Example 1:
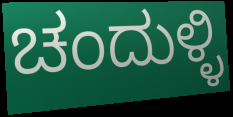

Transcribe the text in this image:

ಚಂದುಳ್ಳಿ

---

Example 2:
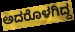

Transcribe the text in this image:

ಅದರೊಳಗಿದ್ದ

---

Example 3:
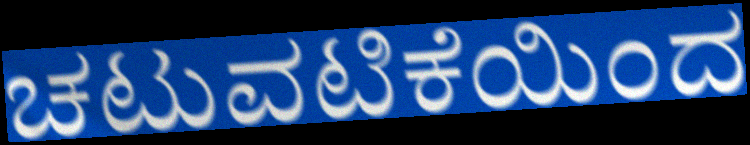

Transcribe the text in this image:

ಚಟುವಟಿಕೆಯಿಂದ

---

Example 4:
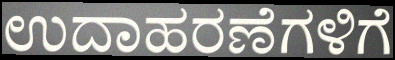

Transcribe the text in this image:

ಉದಾಹರಣೆಗಳಿಗೆ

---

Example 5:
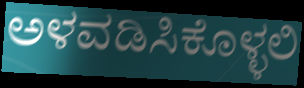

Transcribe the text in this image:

ಅಳವಡಿಸಿಕೊಳ್ಳಲಿ